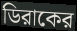
ডিরাকের